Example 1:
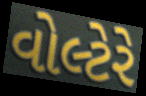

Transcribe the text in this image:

વોલ્ટેરે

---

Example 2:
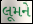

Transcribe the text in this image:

લૂમને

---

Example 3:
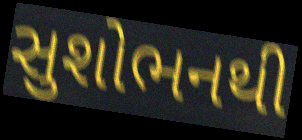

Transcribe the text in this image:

સુશોભનથી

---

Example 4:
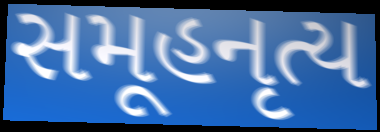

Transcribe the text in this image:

સમૂહનૃત્ય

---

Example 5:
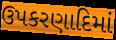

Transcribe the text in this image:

ઉપકરણાદિમાં